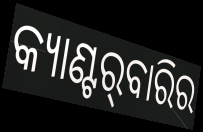
କ୍ୟାଣ୍ଟର୍‌ବାରିର